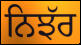
ਨਿਝੱਰ